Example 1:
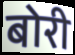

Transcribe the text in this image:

बोरी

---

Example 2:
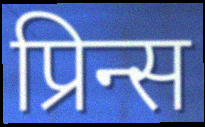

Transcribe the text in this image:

प्रिन्स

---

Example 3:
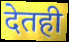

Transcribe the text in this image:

देतही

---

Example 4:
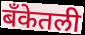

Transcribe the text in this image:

बँकेतली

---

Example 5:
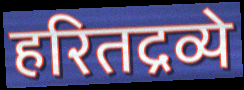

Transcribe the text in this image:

हरितद्रव्ये